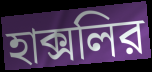
হাক্সলির